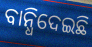
ବାନ୍ଧିଦେଇଛି